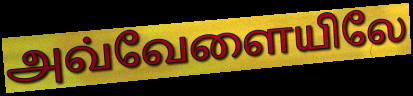
அவ்வேளையிலே